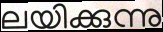
ലയിക്കുന്നു